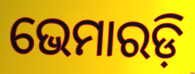
ଭେମାରଡ଼ି